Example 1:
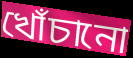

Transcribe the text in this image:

খোঁচানো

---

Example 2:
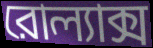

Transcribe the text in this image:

রোল্যাক্স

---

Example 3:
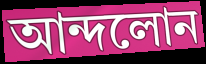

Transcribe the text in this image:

আন্দলোন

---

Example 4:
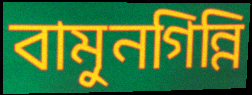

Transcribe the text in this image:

বামুনগিন্নি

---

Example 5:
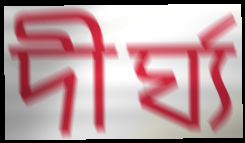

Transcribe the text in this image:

দীর্ঘ্য